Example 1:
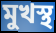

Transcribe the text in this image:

মুখস্থ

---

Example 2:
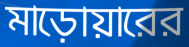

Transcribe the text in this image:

মাড়োয়ারের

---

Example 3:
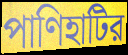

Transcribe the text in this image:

পাণিহাটির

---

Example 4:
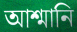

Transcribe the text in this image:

আশ্মানি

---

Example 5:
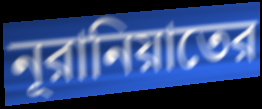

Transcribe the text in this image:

নূরানিয়াতের